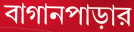
বাগানপাড়ার